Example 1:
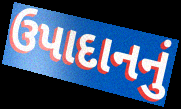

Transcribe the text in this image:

ઉપાદાનનું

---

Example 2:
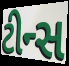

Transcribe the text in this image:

ટીન્સ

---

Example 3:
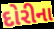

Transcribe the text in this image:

દોરીના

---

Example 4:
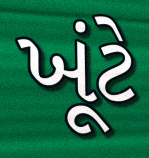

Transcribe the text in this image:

ખૂંટે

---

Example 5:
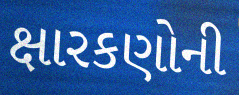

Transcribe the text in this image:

ક્ષારકણોની